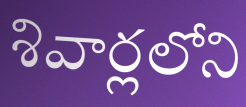
శివార్లలోని